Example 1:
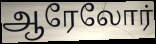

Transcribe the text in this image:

ஆரேலோர்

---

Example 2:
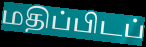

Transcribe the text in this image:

மதிப்பிடப்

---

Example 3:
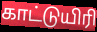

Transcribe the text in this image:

காட்டுயிரி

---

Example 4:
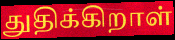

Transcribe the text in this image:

துதிக்கிறாள்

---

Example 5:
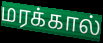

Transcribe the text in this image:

மரக்கால்